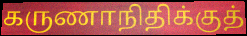
கருணாநிதிக்குத்